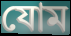
যোম